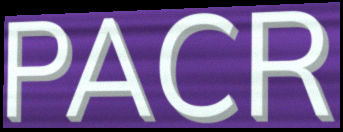
PACR